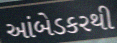
આંબેડકરથી